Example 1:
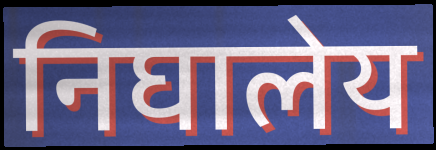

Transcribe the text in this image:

निघालेय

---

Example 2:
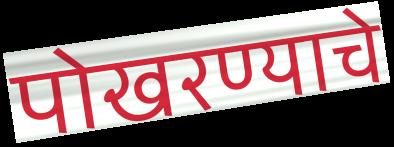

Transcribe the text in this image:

पोखरण्याचे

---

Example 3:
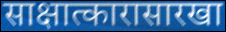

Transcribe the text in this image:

साक्षात्कारासारखा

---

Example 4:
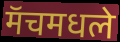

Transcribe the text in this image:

मॅचमधले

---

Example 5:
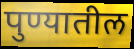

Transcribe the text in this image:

पुण्यातील